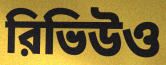
রিভিউও